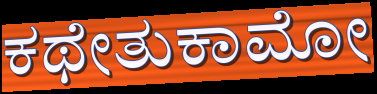
ಕಥೇತುಕಾಮೋ